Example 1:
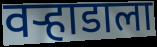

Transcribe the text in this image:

वऱ्हाडाला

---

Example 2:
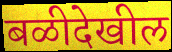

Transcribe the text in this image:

बळीदेखील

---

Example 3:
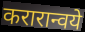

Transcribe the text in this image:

करारान्वये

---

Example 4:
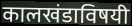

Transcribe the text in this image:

कालखंडाविषयी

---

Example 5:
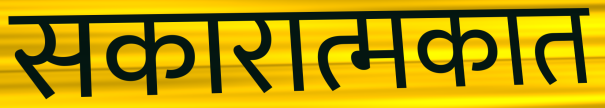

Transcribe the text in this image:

सकारात्मकात